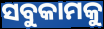
ସବୁକାମକୁ